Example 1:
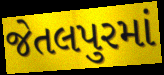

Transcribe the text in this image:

જેતલપુરમાં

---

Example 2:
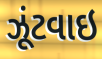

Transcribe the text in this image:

ઝૂંટવાઇ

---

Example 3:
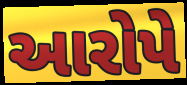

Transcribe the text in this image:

આરોપે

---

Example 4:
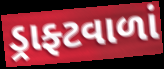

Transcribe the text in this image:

ડ્રાફ્ટવાળાં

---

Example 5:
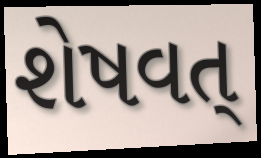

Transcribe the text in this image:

શેષવત્